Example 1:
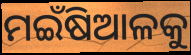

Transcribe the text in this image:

ମଇଁଷିଆଳକୁ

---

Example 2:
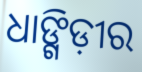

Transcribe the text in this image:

ଧାଙ୍ଗିଡ଼ୀର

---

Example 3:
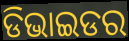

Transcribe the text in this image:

ଡିଭାଇଡର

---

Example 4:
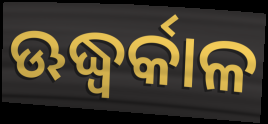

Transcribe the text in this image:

ଊଦ୍ଧ୍ୱର୍କାଳ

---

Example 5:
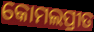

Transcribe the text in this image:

କୋମଲପ୍ରୀତ